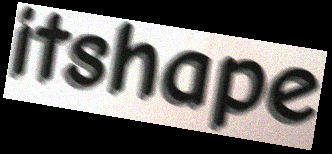
itshape